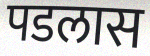
पडलास